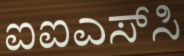
ಐಐಎಸ್‌ಸಿ